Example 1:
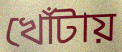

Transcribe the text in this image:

খোঁটায়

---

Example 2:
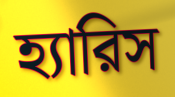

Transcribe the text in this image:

হ্যারিস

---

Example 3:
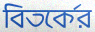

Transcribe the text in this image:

বিতর্কের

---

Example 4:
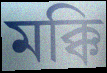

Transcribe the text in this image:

মক্কি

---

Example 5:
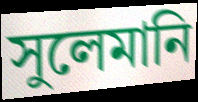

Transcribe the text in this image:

সুলেমানি